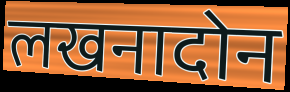
लखनादोन